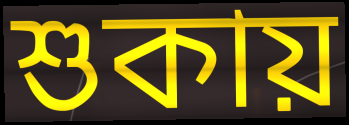
শুকায়